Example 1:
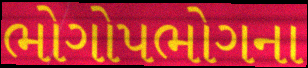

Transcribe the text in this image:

ભોગોપભોગના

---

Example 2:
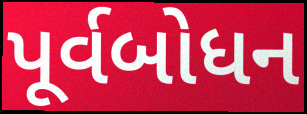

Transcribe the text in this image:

પૂર્વબોધન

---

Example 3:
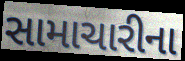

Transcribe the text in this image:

સામાચારીના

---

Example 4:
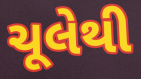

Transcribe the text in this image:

ચૂલેથી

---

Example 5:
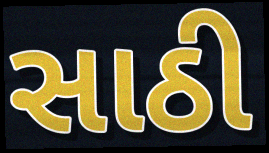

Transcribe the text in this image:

સાઠી